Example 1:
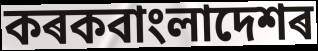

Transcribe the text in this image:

কৰকবাংলাদেশৰ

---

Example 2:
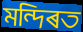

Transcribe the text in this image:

মন্দিৰত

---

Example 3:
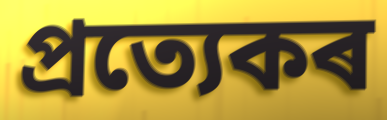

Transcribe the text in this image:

প্ৰত্যেকৰ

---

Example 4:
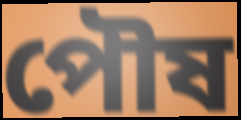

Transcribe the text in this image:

পৌষ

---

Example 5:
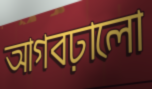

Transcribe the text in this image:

আগবঢ়ালো